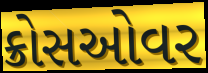
ક્રોસઓવર